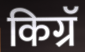
किग्रॅ